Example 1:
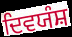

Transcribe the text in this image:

ਦਿਵਯੰਸ਼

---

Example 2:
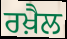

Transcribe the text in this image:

ਰਖ਼ੈਲ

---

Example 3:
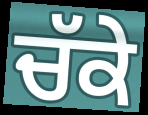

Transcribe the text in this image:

ਚੱਕੇ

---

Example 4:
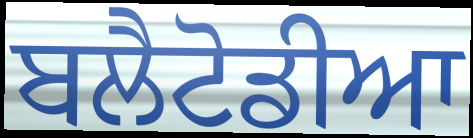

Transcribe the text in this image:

ਬਲੈਟੋਡੀਆ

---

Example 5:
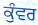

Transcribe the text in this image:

ਕੁੰਵਰ